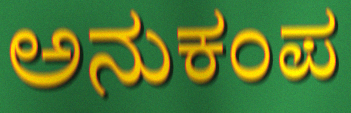
ಅನುಕಂಪ